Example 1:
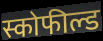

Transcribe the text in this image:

स्कोफील्ड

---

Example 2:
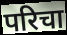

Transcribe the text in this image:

परिचा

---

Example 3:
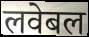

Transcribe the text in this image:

लवेबल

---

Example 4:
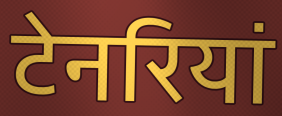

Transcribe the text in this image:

टेनरियां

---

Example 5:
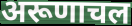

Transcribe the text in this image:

अरूणाचल